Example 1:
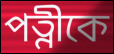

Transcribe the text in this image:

পত্নীকে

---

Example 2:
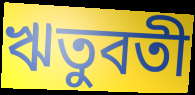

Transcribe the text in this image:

ঋতুবতী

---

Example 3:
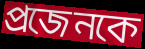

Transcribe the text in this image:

প্রজেনকে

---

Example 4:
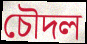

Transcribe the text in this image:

চৌদল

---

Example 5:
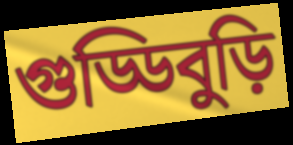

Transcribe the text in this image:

গুড্ডিবুড়ি